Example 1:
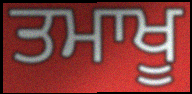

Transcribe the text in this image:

ਤਮਾਖੂ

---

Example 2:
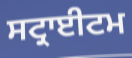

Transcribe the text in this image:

ਸਟ੍ਰਾਈਟਮ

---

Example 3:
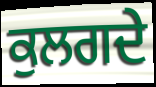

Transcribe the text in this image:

ਕੁਲਗਦੇ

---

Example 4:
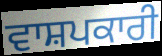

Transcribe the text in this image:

ਵਾਸ਼ਪਕਾਰੀ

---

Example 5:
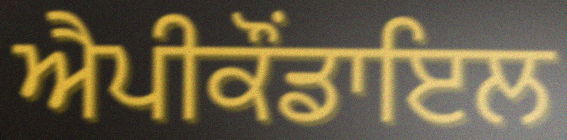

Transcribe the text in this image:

ਐਪੀਕੌਂਡਾਇਲ